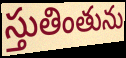
స్తుతింతును